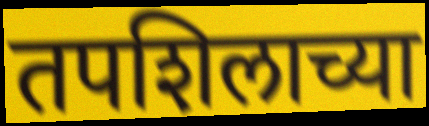
तपशिलाच्या